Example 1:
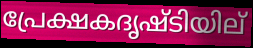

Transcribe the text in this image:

പ്രേക്ഷകദൃഷ്ടിയില്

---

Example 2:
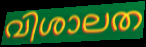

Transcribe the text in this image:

വിശാലത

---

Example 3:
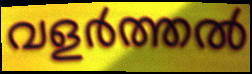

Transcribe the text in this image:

വളർത്തൽ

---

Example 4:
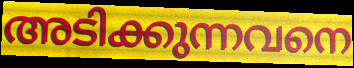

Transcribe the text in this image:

അടിക്കുന്നവനെ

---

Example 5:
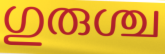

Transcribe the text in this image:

ഗുരുശ്ച